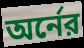
অর্নের